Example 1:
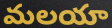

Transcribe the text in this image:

మలయా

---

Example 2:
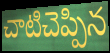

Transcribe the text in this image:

చాటిచెప్పిన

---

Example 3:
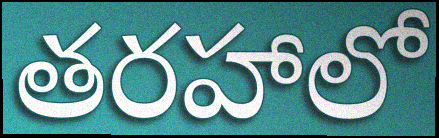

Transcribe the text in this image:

తరహాలో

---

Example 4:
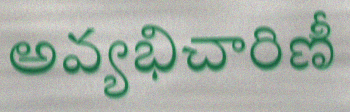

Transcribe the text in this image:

అవ్యభిచారిణీ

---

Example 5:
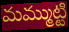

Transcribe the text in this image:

మమ్ముట్టి